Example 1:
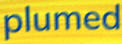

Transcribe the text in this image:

plumed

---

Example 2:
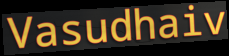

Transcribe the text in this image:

Vasudhaiv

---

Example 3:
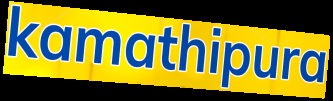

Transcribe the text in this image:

kamathipura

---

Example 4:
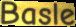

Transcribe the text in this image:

Basle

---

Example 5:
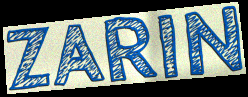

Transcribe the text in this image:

ZARIN